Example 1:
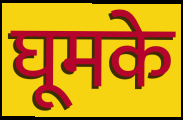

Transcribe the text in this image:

घूमके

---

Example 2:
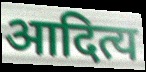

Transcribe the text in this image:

आदित्‍य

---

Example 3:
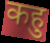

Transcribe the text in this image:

कहु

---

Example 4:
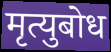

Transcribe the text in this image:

मृत्युबोध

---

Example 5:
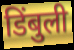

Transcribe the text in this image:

डिंबुली